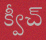
క్వీచ్